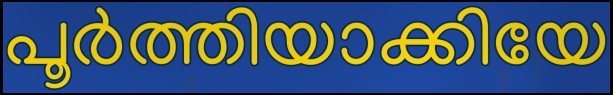
പൂർത്തിയാക്കിയേ